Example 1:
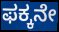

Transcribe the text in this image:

ಫಕ್ಕನೇ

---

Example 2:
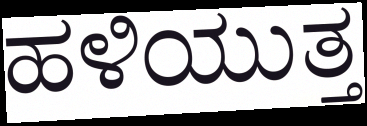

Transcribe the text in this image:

ಹಳಿಯುತ್ತ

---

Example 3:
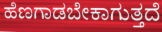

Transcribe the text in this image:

ಹೆಣಗಾಡಬೇಕಾಗುತ್ತದೆ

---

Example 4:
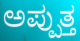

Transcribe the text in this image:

ಅಪ್ಪುತ್ತ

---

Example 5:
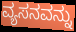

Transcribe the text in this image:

ವ್ಯಸನವನ್ನು